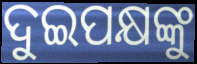
ଦୁଇପକ୍ଷଙ୍କୁ